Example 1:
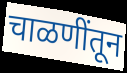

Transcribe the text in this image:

चाळणींतून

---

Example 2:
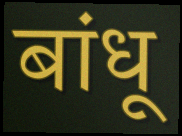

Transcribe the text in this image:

बांधू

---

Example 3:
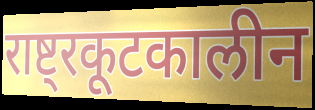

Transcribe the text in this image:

राष्ट्रकूटकालीन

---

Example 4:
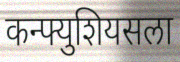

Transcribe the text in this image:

कन्फ्युशियसला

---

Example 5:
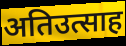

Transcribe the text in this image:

अतिउत्साह